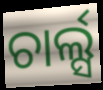
ଚାର୍ଲ୍ସ